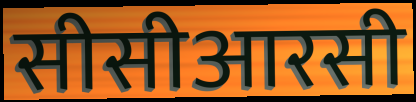
सीसीआरसी